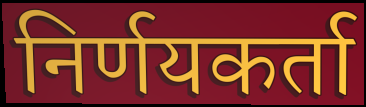
निर्णयकर्ता